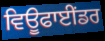
ਵਿਊਫਾਈਂਡਰ